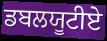
ਡਬਲਯੂਟੀਏ